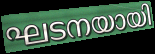
ഘടനയായി